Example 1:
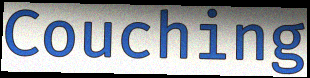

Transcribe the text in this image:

Couching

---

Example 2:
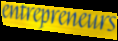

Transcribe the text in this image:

entrepreneurs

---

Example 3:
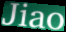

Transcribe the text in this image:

Jiao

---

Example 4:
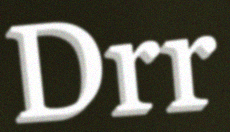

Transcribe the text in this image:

Drr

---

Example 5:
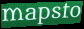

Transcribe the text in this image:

mapsto